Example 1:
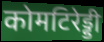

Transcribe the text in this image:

कोमटिरेड्डी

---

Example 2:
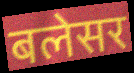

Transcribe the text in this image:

बलेसर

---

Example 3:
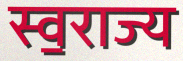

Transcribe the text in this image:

स्व॒राज्य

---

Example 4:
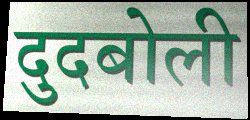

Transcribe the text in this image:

दुदबोली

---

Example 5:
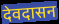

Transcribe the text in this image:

देवदासन